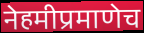
नेहमीप्रमाणेच